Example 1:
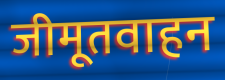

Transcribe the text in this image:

जीमूतवाहन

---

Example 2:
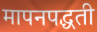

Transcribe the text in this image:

मापनपद्धती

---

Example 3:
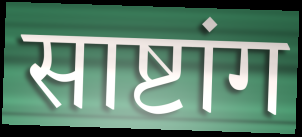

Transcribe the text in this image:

साष्टांग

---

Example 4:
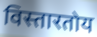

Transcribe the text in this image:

विस्तारतोय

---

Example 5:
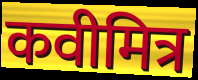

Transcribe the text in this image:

कवीमित्र